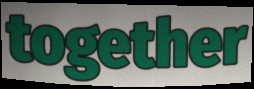
together